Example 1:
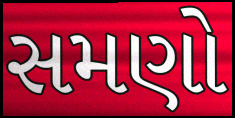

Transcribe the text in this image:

સમણો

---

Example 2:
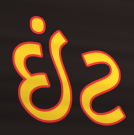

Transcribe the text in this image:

ઇંટ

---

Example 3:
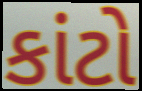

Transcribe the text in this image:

કાંટો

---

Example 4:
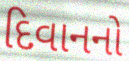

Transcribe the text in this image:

દિવાનનો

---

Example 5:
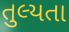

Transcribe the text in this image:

તુલ્યતા